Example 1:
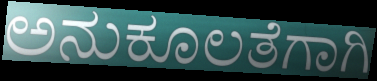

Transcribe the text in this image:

ಅನುಕೂಲತೆಗಾಗಿ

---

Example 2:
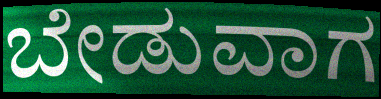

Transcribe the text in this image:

ಬೇಡುವಾಗ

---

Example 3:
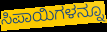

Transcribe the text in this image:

ಸಿಪಾಯಿಗಳನ್ನೂ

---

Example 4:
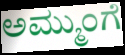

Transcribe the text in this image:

ಅಮ್ಮುಂಗೆ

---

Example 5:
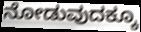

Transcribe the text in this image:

ನೋಡುವುದಕ್ಕೂ